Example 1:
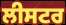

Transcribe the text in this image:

ਲੀਸਟਰ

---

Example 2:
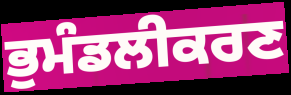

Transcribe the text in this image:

ਭੁਮੰਡਲੀਕਰਣ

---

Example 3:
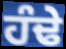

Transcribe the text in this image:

ਹੰਢੇ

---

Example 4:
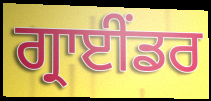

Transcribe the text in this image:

ਗ੍ਰਾਈਂਡਰ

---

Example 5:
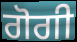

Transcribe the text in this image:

ਗੋਗੀ